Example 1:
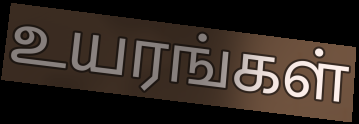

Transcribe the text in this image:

உயரங்கள்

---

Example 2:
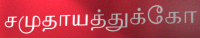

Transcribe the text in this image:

சமுதாயத்துக்கோ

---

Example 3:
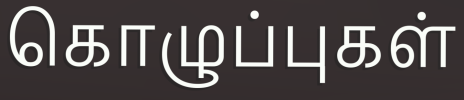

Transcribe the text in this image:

கொழுப்புகள்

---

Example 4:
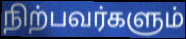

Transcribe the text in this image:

நிற்பவர்களும்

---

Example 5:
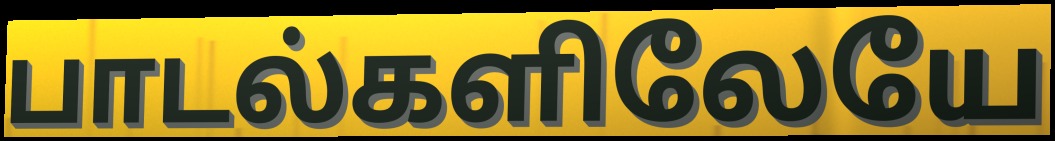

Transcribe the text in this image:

பாடல்களிலேயே